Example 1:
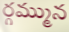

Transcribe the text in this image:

ర్గమ్మున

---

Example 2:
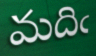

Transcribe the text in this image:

మదిఁ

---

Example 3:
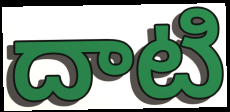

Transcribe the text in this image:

దాటి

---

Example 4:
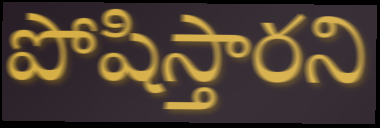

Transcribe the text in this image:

పోషిస్తారని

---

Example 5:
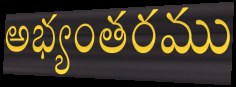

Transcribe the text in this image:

అభ్యంతరము